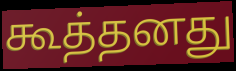
கூத்தனது